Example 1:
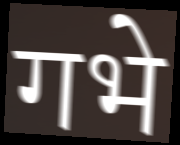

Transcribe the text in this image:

गभे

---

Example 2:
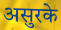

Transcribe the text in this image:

असुरके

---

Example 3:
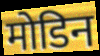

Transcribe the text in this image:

मोडिन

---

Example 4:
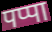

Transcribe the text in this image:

पप्‍पा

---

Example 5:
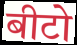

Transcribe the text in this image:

बीटो